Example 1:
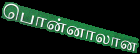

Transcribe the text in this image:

பொன்னாலான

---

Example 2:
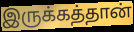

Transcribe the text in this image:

இருக்கத்தான்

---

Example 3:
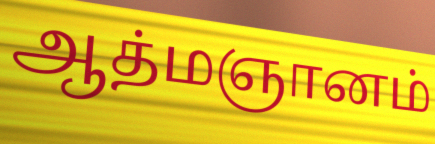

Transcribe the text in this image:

ஆத்மஞானம்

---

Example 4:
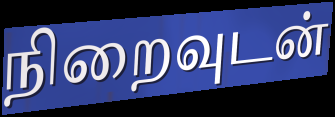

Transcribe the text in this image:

நிறைவுடன்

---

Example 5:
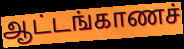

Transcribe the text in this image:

ஆட்டங்காணச்